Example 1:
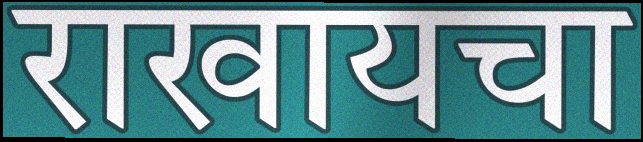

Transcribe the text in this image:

राखायचा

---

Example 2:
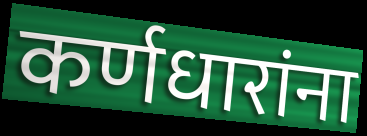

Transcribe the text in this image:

कर्णधारांना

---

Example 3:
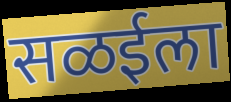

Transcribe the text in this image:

सळईला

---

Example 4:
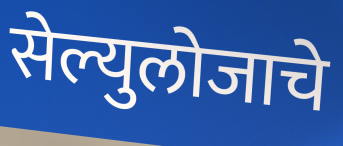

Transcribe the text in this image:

सेल्युलोजाचे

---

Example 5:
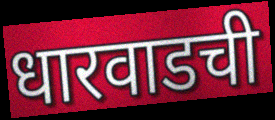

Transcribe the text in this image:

धारवाडची